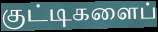
குட்டிகளைப்